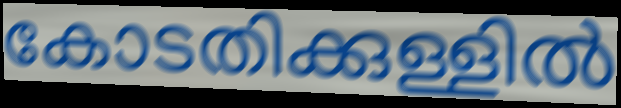
കോടതിക്കുള്ളിൽ